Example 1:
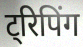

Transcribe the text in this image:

ट्रिपिंग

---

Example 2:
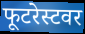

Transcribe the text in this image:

फूटरेस्टवर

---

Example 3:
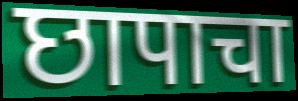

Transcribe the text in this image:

छापाचा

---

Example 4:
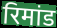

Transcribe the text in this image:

रिमांड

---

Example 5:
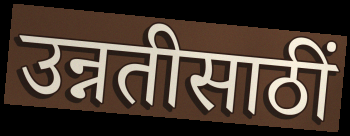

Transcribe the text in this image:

उन्नतीसाठीं